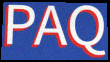
PAQ